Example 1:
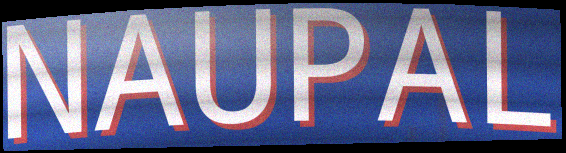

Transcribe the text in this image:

NAUPAL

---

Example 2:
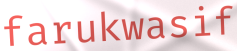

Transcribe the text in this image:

farukwasif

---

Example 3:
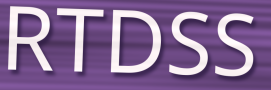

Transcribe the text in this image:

RTDSS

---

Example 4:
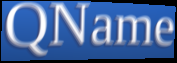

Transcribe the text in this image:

QName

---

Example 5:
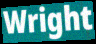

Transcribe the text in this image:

Wright